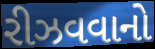
રીઝવવાનો